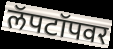
लॅपटॉपवर